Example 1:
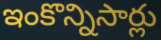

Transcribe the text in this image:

ఇంకొన్నిసార్లు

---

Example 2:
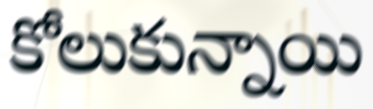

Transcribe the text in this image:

కోలుకున్నాయి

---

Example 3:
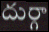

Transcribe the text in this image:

దుర్గా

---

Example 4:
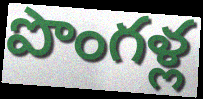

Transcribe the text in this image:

పొంగళ్ల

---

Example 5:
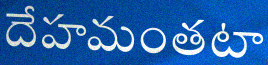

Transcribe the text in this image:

దేహమంతటా